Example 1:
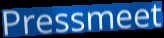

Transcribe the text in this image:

Pressmeet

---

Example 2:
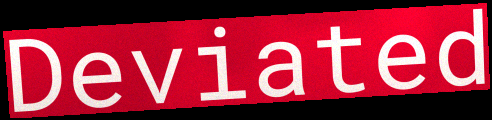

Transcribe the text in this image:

Deviated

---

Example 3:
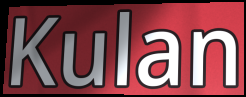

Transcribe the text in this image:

Kulan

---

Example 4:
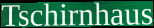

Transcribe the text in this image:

Tschirnhaus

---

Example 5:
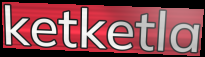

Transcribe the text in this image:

ketketla